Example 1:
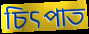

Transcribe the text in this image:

চিৎপাত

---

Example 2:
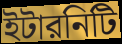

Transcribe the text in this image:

ইটারনিটি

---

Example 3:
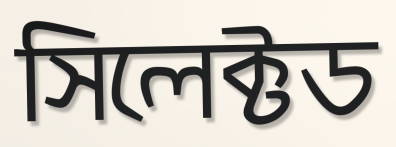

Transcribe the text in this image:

সিলেক্টড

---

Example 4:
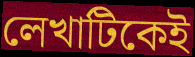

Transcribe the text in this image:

লেখাটিকেই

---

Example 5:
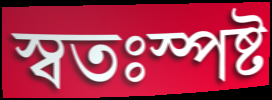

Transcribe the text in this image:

স্বতঃস্পষ্ট